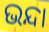
ଭନ୍ଦା